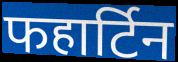
फहार्टिन